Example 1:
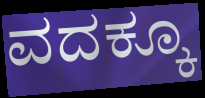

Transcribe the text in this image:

ವದಕ್ಕೂ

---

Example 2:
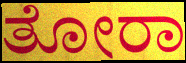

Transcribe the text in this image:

ತೋರಾ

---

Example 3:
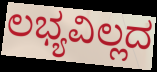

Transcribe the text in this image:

ಲಭ್ಯವಿಲ್ಲದ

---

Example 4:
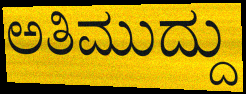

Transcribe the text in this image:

ಅತಿಮುದ್ದು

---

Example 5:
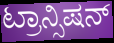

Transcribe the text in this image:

ಟ್ರಾನ್ಸಿಷನ್